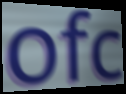
ofc